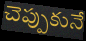
చెప్పుకునే